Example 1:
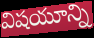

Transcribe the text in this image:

విషయూన్ని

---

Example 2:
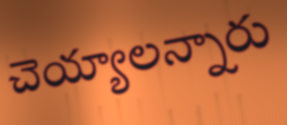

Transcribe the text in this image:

చెయ్యాలన్నారు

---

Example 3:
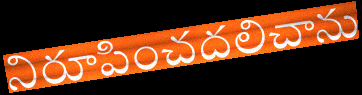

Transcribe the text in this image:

నిరూపించదలిచాను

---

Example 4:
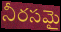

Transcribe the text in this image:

నీరసమై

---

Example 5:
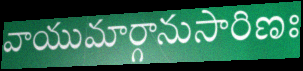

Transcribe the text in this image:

వాయుమార్గానుసారిణః